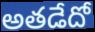
అతడేదో